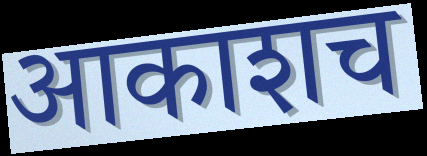
आकाशच